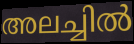
അലച്ചിൽ